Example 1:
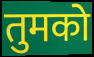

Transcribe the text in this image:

तुमको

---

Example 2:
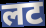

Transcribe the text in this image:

लट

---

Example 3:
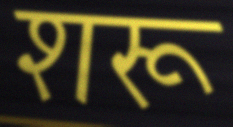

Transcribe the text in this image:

शरू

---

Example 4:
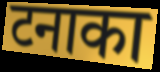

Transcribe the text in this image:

टनाका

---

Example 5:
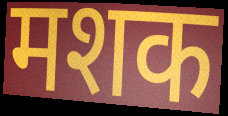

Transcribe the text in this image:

मशक